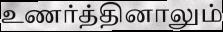
உணர்த்தினாலும்